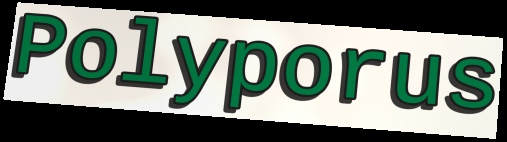
Polyporus